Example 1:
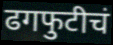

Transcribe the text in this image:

ढगफुटीचं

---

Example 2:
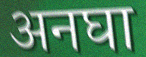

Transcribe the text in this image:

अनघा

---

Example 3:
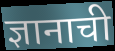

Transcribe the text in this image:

ज्ञानाची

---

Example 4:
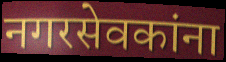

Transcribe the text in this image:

नगरसेवकांना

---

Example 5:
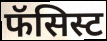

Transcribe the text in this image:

फॅसिस्ट